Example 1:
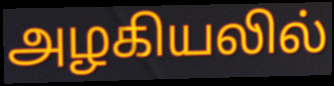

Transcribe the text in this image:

அழகியலில்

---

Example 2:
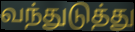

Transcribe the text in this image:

வந்துடுத்து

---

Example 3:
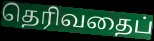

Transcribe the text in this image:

தெரிவதைப்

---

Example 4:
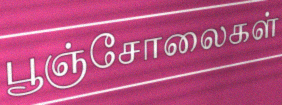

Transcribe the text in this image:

பூஞ்சோலைகள்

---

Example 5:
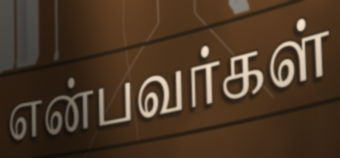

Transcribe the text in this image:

என்பவர்கள்